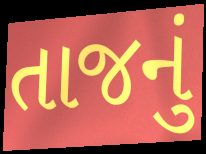
તાજનું